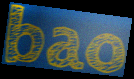
bao